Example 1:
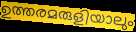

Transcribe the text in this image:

ഉത്തരമരുളിയാലും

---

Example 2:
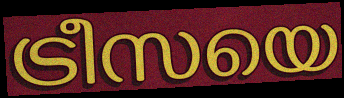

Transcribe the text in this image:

ട്രീസയെ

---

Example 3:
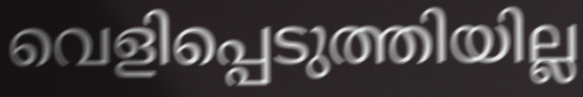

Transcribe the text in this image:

വെളിപ്പെടുത്തിയില്ല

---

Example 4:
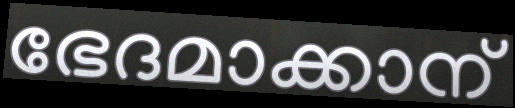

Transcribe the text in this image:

ഭേദമാക്കാന്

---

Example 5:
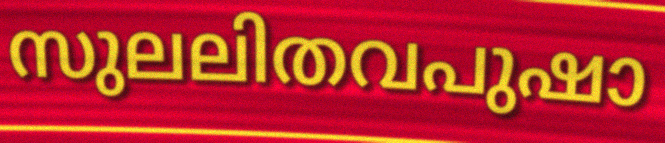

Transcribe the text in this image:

സുലലിതവപുഷാ